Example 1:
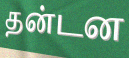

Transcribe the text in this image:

தன்டன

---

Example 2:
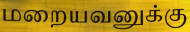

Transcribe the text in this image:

மறையவனுக்கு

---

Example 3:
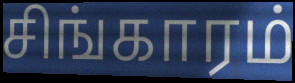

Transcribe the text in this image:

சிங்காரம்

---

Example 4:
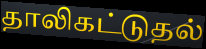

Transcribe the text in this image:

தாலிகட்டுதல்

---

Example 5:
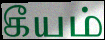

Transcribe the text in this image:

கீயம்